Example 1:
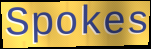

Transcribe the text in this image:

Spokes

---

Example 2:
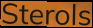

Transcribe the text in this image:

Sterols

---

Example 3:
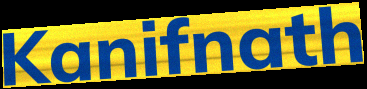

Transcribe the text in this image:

Kanifnath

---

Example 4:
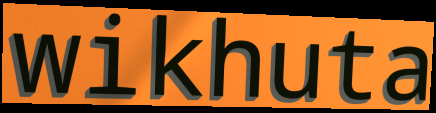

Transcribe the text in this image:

wikhuta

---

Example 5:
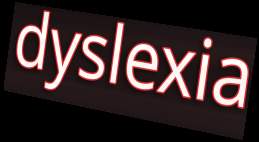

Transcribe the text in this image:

dyslexia